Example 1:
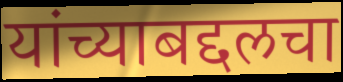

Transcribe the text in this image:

यांच्याबद्दलचा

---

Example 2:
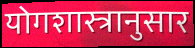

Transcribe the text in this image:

योगशास्त्रानुसार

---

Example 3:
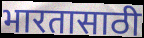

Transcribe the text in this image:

भारतासाठी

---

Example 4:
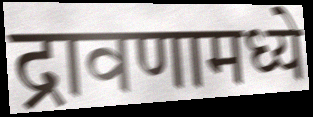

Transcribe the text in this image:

द्रावणामध्ये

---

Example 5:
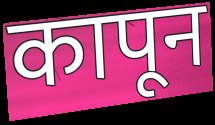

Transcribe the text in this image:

कापून